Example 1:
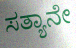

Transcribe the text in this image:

ಸತ್ಯಾನೇ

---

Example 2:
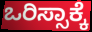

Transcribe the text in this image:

ಒರಿಸ್ಸಾಕ್ಕೆ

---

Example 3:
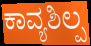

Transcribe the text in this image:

ಕಾವ್ಯಶಿಲ್ಪ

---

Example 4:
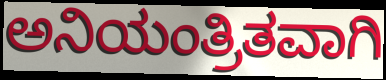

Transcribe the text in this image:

ಅನಿಯಂತ್ರಿತವಾಗಿ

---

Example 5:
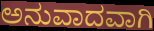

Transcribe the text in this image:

ಅನುವಾದವಾಗಿ